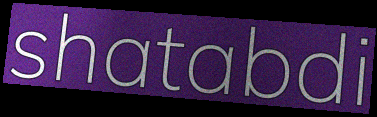
shatabdi